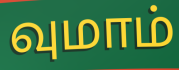
வுமாம்